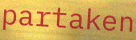
partaken